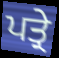
ਪਤ੍ਰੇ